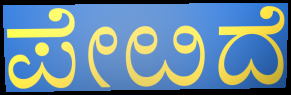
ಪೇೞದೆ